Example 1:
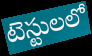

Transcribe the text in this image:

టెస్టులలో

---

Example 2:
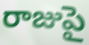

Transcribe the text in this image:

రాజుపై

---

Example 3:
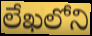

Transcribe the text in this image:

లేఖలోని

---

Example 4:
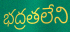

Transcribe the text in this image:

భద్రతలేని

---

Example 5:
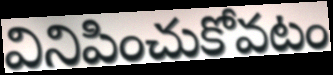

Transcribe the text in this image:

వినిపించుకోవటం